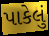
પાકેલું